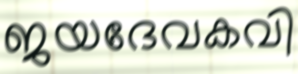
ജയദേവകവി